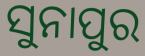
ସୁନାପୁର